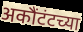
अकौंटंटच्या